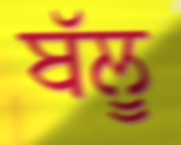
ਬੱਲੂ